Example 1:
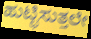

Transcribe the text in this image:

ಹುಟ್ಟಿಸುತ್ತಲೇ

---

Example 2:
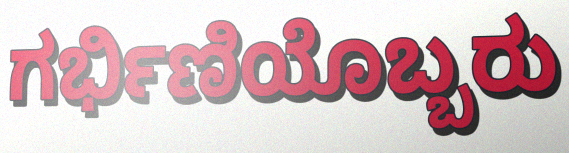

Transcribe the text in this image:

ಗರ್ಭಿಣಿಯೊಬ್ಬರು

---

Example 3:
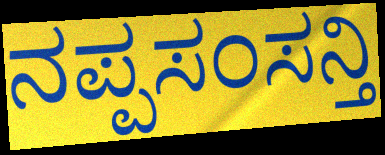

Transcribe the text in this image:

ನಪ್ಪಸಂಸನ್ತಿ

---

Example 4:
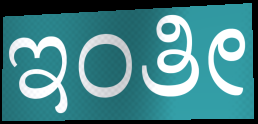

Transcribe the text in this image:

ಇಂತೀ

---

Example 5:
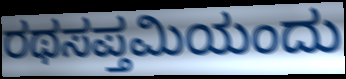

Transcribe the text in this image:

ರಥಸಪ್ತಮಿಯಂದು